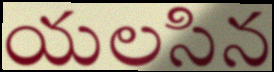
యలసిన